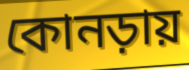
কোনড়ায়